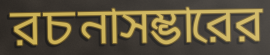
রচনাসম্ভারের